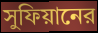
সুফিয়ানের